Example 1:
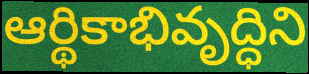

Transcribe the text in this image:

ఆర్థికాభివృద్ధిని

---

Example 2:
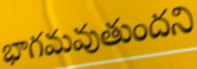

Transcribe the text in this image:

భాగమవుతుందని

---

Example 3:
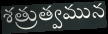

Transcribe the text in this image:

శత్రుత్వమున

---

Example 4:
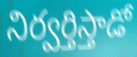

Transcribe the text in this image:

నిర్వర్తిస్తాడో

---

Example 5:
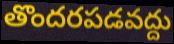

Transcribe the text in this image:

తొందరపడవద్దు